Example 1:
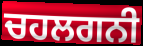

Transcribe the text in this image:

ਚਹਲਗਨੀ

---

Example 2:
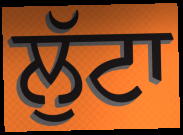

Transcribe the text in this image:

ਲੁੱਟਾ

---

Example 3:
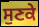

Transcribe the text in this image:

ਸੁਣਕੇ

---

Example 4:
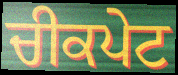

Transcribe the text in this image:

ਚੀਕਪੇਟ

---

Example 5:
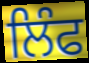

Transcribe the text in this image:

ਲਿੰਫ